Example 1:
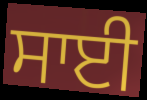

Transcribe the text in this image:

ਸਾਈ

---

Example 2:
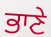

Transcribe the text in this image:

ਭਾਣੇ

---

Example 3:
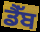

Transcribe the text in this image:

ਡੈੱਬ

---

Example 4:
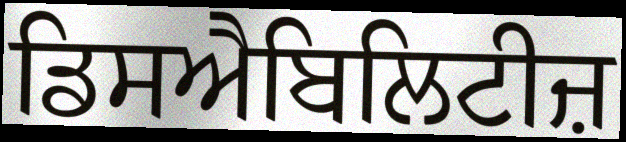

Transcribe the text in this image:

ਡਿਸਐਬਿਲਿਟੀਜ਼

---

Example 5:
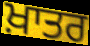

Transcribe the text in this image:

ਖ਼ਾਤਰ